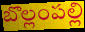
బొల్లంపల్లి